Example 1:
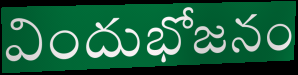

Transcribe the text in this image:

విందుభోజనం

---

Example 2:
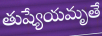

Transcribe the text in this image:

తుష్యేయమృతే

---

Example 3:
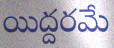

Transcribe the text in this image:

యిద్దరమే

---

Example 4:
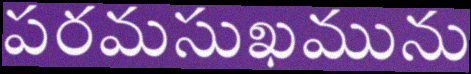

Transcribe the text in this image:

పరమసుఖమును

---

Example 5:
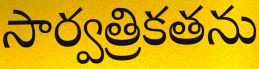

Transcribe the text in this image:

సార్వత్రికతను